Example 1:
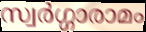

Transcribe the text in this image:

സ്വർഗ്ഗാരാമം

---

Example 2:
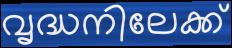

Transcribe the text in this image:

വൃദ്ധനിലേക്ക്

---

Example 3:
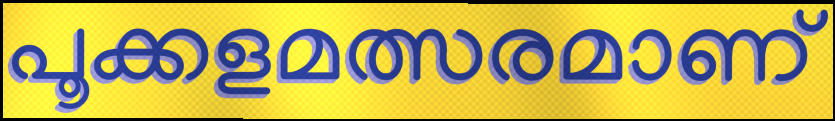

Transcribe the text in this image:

പൂക്കളമത്സരമാണ്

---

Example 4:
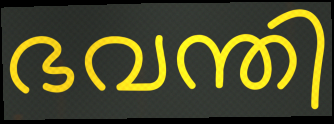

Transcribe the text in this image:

ഭവന്തി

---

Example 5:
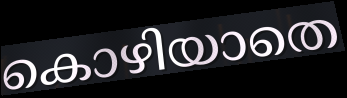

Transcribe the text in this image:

കൊഴിയാതെ